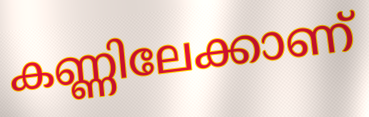
കണ്ണിലേക്കാണ്